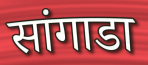
सांगाडा